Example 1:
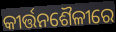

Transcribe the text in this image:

କୀର୍ତ୍ତନଶୈଳୀରେ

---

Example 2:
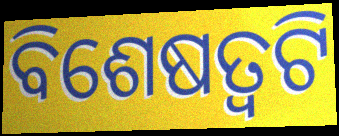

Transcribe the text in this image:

ବିଶେଷତ୍ୱଟି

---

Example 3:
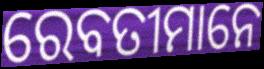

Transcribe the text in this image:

ରେବତୀମାନେ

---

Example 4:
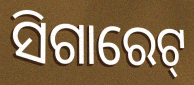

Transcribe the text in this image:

ସିଗାରେଟ୍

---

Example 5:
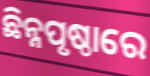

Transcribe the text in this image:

ଛିନ୍ନପୃଷ୍ଠାରେ